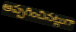
అప్పగించినట్లుగా